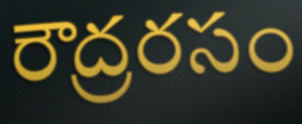
రౌద్రరసం